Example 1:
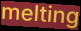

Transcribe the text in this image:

melting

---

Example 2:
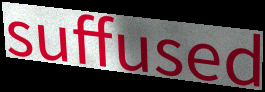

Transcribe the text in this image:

suffused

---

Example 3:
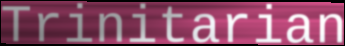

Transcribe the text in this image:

Trinitarian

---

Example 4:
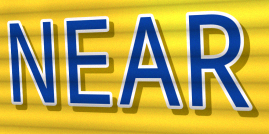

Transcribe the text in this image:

NEAR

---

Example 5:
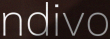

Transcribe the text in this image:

ndivo